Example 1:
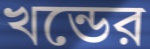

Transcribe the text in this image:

খন্ডের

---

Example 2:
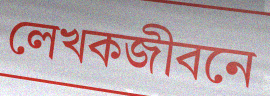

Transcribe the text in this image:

লেখকজীবনে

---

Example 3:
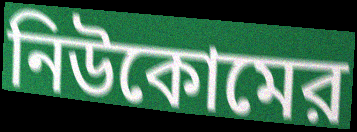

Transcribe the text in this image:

নিউকোমের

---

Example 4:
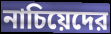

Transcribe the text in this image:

নাচিয়েদের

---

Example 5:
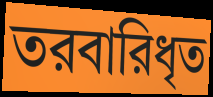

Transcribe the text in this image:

তরবারিধৃত